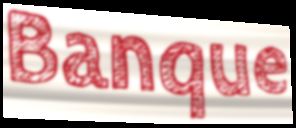
Banque